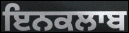
ਇਨਕਲਾਬ